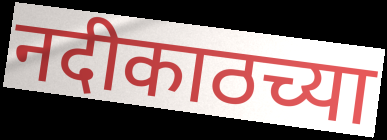
नदीकाठच्या